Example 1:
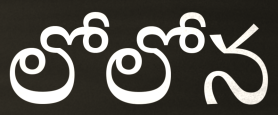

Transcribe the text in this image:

లోలోన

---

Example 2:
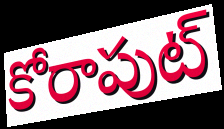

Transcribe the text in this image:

కోరాపుట్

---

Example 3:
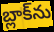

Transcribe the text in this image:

బ్లాక్‌ను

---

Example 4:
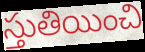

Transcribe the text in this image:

స్తుతియించి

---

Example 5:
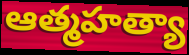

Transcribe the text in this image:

ఆత్మహత్యా